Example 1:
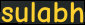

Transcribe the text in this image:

sulabh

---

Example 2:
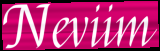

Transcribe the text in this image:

Neviim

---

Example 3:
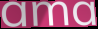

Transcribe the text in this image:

ama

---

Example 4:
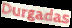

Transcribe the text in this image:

Durgadas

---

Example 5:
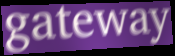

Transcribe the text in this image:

gateway